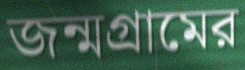
জন্মগ্রামের